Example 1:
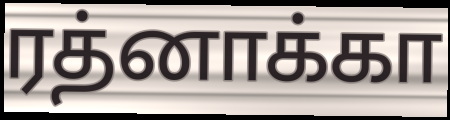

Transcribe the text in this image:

ரத்னாக்கா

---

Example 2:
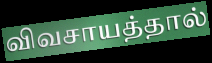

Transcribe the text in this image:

விவசாயத்தால்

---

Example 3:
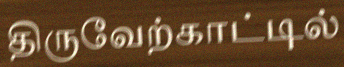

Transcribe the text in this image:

திருவேற்காட்டில்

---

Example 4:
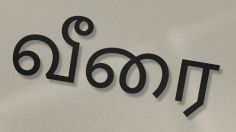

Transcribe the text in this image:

வீரை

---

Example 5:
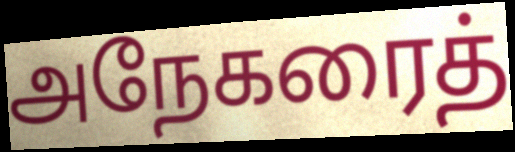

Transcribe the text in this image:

அநேகரைத்